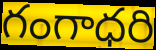
గంగాధరి